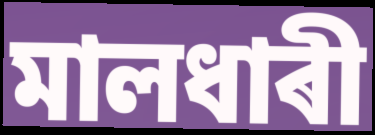
মালধাৰী